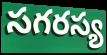
సగరస్య